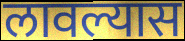
लावल्यास